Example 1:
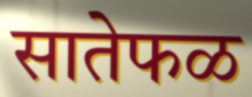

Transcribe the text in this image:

सातेफळ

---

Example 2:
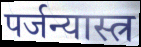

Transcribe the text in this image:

पर्जन्यास्त्र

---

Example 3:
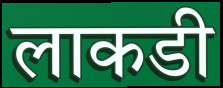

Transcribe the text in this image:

लाकडी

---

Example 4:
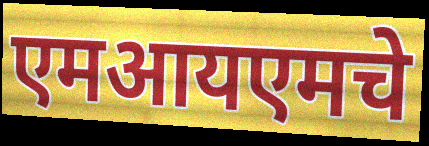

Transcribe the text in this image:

एमआयएमचे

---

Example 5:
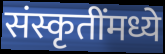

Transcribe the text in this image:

संस्कृतींमध्ये